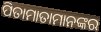
ପିତାମାତାମାନଙ୍କର